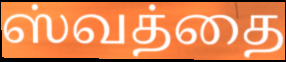
ஸ்வத்தை